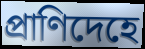
প্রাণিদেহে